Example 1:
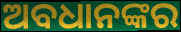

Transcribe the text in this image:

ଅବଧାନଙ୍କର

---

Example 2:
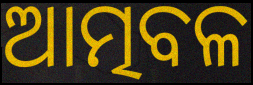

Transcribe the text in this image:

ଆତ୍ମବଳ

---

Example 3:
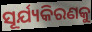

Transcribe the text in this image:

ସୂର୍ଯ୍ୟକିରଣକୁ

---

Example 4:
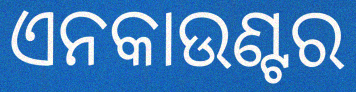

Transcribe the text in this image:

ଏନକାଉଣ୍ଟର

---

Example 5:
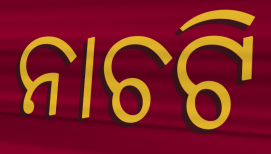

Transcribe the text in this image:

ନାଚଟି